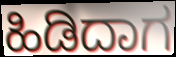
ಹಿಡಿದಾಗ